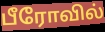
பீரோவில்